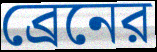
ব্রেনের